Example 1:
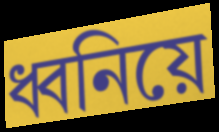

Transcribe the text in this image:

ধ্বনিয়ে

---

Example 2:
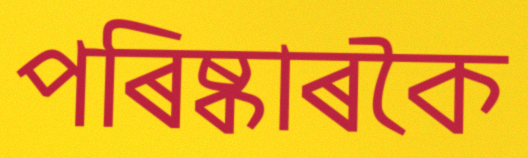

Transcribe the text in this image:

পৰিষ্কাৰকৈ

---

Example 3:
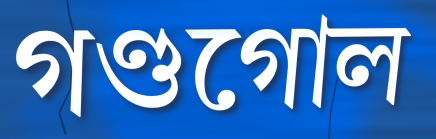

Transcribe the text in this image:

গণ্ডগোল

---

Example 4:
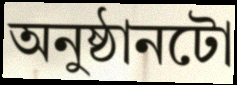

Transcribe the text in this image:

অনুষ্ঠানটো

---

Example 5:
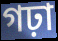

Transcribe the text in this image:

গঢ়া